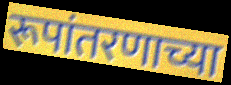
रूपांतरणाच्या